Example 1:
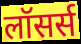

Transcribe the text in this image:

लॉसर्स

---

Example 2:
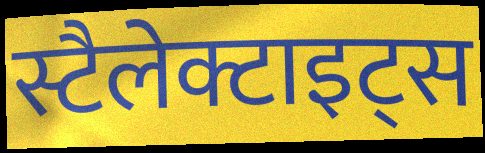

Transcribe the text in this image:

स्टैलेक्टाइट्स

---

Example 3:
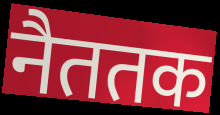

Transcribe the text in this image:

नैततक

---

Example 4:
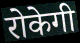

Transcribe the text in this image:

रोकेगी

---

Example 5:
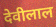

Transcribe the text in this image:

देवीलाल